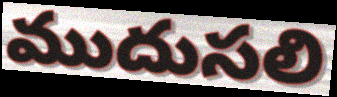
ముదుసలి